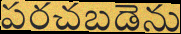
పరచబడెను